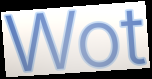
Wot